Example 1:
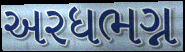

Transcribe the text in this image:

અરધભગ્ન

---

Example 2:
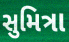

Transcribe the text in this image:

સુમિત્રા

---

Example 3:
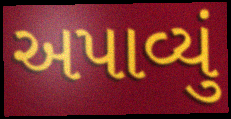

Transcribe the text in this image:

અપાવ્યું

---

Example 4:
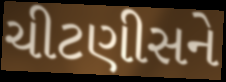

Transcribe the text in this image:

ચીટણીસને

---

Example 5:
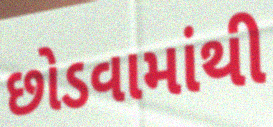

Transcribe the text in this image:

છોડવામાંથી